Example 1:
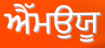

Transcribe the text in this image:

ਐੱਮਉਯੂ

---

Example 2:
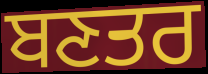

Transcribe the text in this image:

ਬਣਤਰ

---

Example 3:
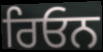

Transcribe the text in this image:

ਰਿਓਨ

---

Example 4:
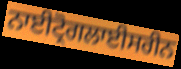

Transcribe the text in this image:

ਨਾਈਟ੍ਰੋਗਲਾਈਸਰੀਨ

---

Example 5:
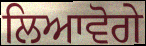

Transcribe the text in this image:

ਲਿਆਵੋਗੇ